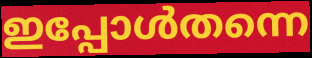
ഇപ്പോൾതന്നെ